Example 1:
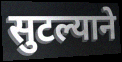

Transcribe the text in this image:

सुटल्याने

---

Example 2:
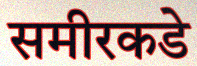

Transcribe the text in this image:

समीरकडे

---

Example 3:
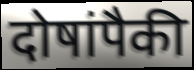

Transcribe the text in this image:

दोषांपैकी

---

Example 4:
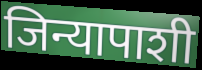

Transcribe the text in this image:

जिन्यापाशी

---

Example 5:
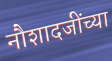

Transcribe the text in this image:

नौशादजींच्या